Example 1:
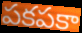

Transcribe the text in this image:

పకపకా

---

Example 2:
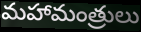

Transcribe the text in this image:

మహామంత్రులు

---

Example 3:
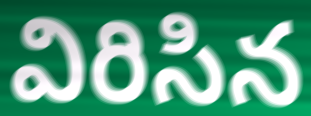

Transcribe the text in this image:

విరిసిన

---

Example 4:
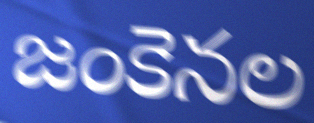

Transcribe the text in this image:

జంకెనల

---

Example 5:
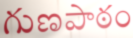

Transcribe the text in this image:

గుణపాఠం